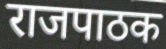
राजपाठक